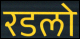
रडलो